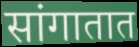
सांगातात